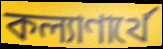
কল্যাণার্থে